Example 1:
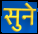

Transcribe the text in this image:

सुने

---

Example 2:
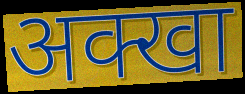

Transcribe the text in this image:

अक्खा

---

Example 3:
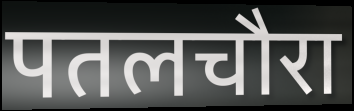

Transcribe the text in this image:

पतलचौरा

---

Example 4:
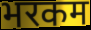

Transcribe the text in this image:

भरकम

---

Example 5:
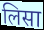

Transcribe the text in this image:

लिसा